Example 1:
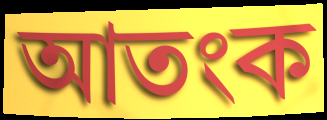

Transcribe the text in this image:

আতংক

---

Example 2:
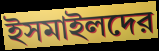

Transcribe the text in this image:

ইসমাইলদের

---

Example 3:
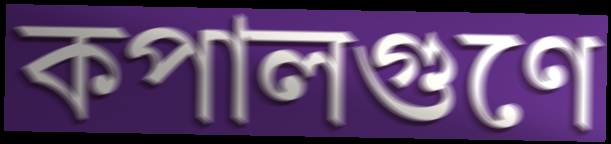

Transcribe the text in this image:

কপালগুণে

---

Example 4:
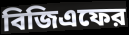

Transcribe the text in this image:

বিজিএফের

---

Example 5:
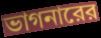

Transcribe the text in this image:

ভাগনারের